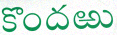
కొందఱు